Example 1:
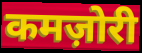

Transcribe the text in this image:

कमज़ोरी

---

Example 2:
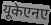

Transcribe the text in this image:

यूकेएनए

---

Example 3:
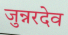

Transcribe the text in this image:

जुन्नरदेव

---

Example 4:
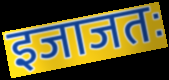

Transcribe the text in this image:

इजाजतः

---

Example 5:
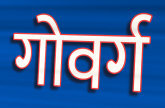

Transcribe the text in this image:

गोवर्ग